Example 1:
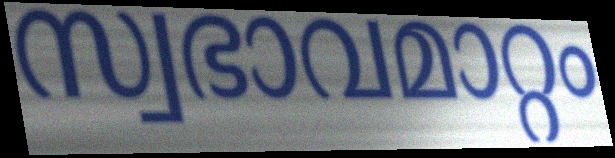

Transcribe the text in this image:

സ്വഭാവമാറ്റം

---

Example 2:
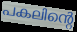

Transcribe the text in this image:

പകലിന്റെ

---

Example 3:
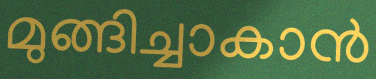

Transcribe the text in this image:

മുങ്ങിച്ചാകാൻ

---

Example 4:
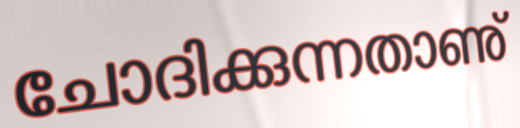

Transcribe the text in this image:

ചോദിക്കുന്നതാണു്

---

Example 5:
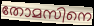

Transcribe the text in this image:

തോമസിനെ